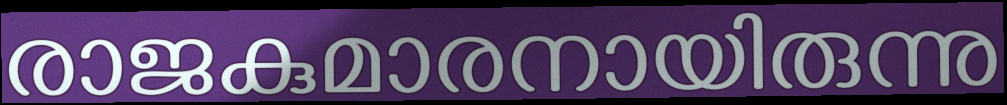
രാജകുമാരനായിരുന്നു